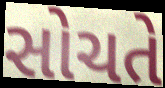
સોચતે